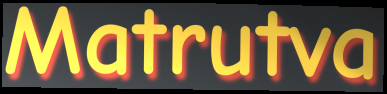
Matrutva